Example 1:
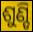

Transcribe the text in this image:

ଶୁଣ୍ଡି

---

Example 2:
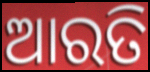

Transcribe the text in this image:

ଆରତି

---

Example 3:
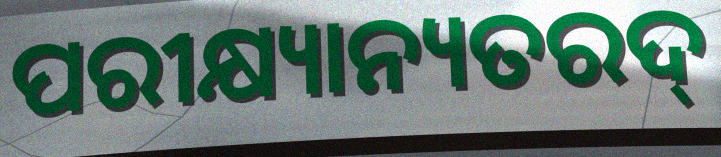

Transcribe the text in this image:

ପରୀକ୍ଷ୍ୟାନ୍ୟତରଦ୍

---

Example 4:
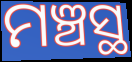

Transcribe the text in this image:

ମଞ୍ଚସ୍ଥ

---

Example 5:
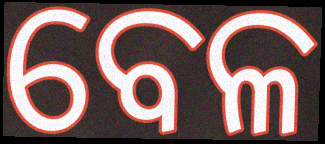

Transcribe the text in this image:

ବେଳ